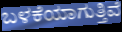
ಬಳಕೆಯಾಗುತ್ತಿವೆ